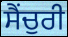
ਸੈਂਚੁਰੀ